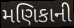
મણિકાની